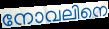
നോവലിനെ